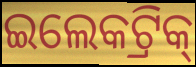
ଇଲେକଟ୍ରିକ୍